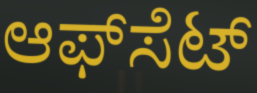
ಆಫ್‍ಸೆಟ್